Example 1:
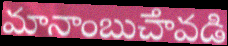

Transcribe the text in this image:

మానాంబుౘావడి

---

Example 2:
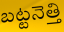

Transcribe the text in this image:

బట్టనెత్తి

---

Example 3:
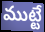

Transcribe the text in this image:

ముట్టే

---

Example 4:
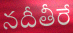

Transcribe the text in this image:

నదీతీరే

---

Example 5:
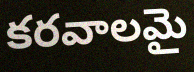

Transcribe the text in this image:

కరవాలమై